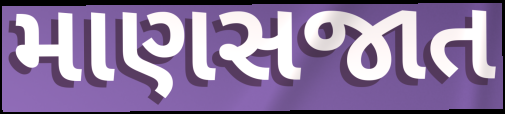
માણસજાત